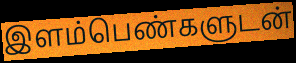
இளம்பெண்களுடன்